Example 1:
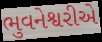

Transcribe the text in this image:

ભુવનેશ્વરીએ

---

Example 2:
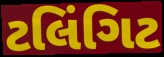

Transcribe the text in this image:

ટલિંગિટ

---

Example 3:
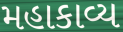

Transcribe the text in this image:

મહાકાવ્ય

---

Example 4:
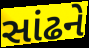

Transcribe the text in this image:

સાંઢને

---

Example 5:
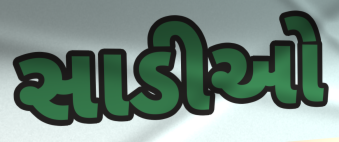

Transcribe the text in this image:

સાડીઓ